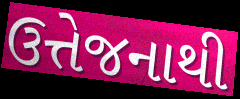
ઉત્તેજનાથી